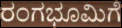
ರಂಗಭೂಮಿಗೆ